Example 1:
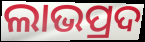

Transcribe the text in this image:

ଲାଭପ୍ରଦ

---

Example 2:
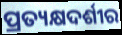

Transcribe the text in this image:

ପ୍ରତ୍ୟକ୍ଷଦର୍ଶୀର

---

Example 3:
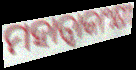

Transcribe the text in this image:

ମହାତ୍ୱାକାଂକ୍ଷୀ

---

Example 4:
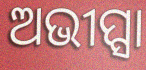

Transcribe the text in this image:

ଅଭୀପ୍ସା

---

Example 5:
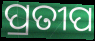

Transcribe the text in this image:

ପ୍ରତୀପ